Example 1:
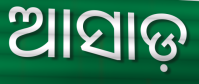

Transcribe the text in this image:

ଆସାଡ଼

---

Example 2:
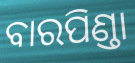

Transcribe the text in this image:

ବାରପିଣ୍ଡା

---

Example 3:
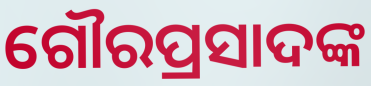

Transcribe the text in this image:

ଗୌରପ୍ରସାଦଙ୍କ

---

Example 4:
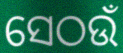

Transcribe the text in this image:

ସେଠଉଁ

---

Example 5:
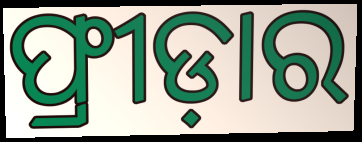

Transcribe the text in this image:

ଫ୍ରୀଡ଼ାର